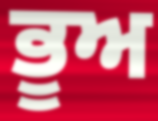
ਭੂਅ